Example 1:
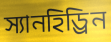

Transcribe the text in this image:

স্যানহিড্রিন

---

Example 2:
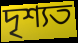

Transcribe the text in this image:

দৃশ্যত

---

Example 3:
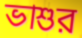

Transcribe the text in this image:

ভাশুর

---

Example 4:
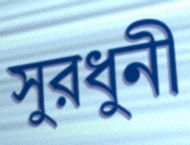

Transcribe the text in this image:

সুরধুনী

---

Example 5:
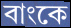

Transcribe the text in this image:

বাংকে